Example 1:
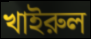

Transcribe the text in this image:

খাইরুল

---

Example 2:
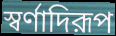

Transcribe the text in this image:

স্বর্ণাদিরূপ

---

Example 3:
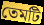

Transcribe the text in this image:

তেমটি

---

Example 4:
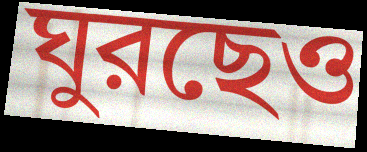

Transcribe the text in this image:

ঘুরছেও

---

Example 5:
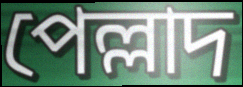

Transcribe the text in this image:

পেল্লাদ